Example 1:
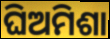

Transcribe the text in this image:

ଘିଅମିଶା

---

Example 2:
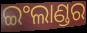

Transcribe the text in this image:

ଇଂଲାଣ୍ଡର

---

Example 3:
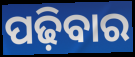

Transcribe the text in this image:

ପଢ଼ିବାର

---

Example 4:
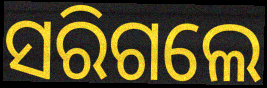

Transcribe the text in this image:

ସରିଗଲେ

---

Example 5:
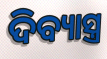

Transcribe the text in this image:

ଦିବ୍ୟାସ୍ତ୍ର